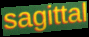
sagittal